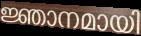
ജ്ഞാനമായി